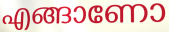
എങ്ങാണോ